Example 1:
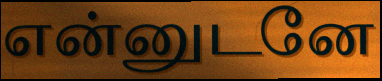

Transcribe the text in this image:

என்னுடனே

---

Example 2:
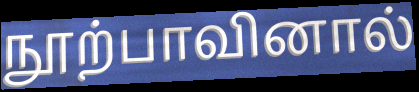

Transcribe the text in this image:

நூற்பாவினால்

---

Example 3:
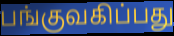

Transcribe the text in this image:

பங்குவகிப்பது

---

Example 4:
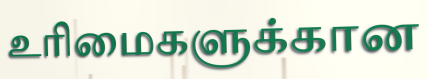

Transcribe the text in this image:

உரிமைகளுக்கான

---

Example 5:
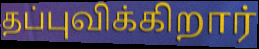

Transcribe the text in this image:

தப்புவிக்கிறார்